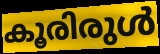
കൂരിരുൾ